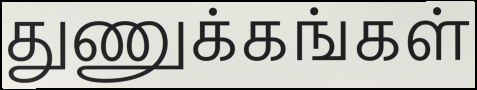
துணுக்கங்கள்